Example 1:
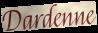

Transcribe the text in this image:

Dardenne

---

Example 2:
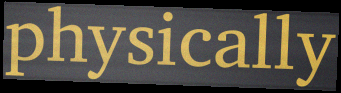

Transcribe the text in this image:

physically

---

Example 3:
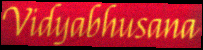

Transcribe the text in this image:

Vidyabhusana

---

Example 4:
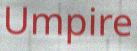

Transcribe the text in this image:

Umpire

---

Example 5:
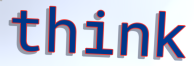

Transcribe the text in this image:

think